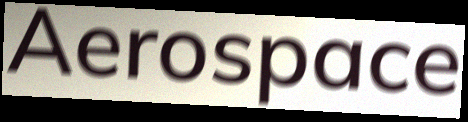
Aerospace